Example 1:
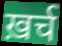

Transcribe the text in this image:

ख़र्च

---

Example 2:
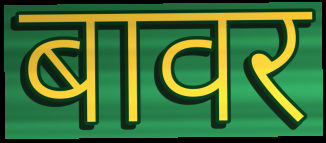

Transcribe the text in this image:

बावर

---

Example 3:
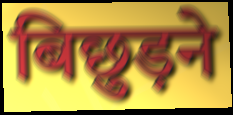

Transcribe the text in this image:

बिछुड़ने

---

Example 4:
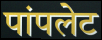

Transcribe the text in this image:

पांपलेट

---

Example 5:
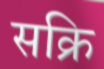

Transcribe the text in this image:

सक्रि